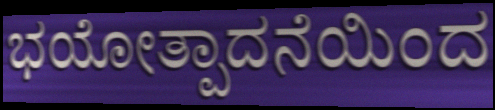
ಭಯೋತ್ಪಾದನೆಯಿಂದ